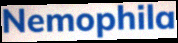
Nemophila